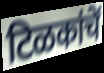
टिळकांचें